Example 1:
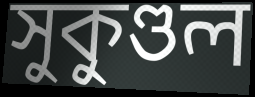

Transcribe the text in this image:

সুকুণ্ডল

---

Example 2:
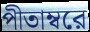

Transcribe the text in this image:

পীতাম্বরে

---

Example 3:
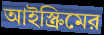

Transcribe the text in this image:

আইস্ক্রিমের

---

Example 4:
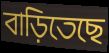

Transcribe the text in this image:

বাড়িতেছে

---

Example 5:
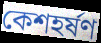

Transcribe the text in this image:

কেশহর্ষণ